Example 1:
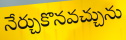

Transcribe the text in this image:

నేర్చుకొనవచ్చును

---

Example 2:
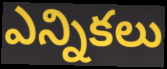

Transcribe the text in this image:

ఎన్నికలు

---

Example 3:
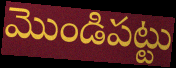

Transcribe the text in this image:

మొండిపట్టు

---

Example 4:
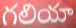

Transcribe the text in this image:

గలియా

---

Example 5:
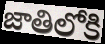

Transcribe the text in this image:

జాతిలోకి